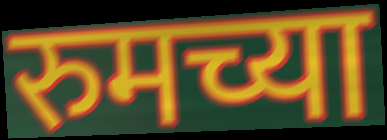
रुमच्या